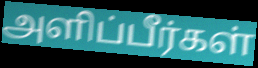
அளிப்பீர்கள்